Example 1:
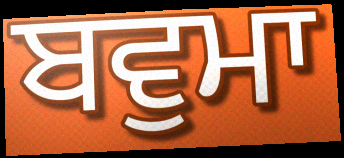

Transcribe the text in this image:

ਬਵੁਮਾ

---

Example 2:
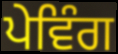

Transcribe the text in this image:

ਪੇਵਿੰਗ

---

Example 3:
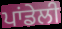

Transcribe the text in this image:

ਪਾਂਡੇਲੀ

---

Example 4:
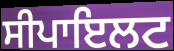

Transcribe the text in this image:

ਸੀਪਾਇਲਟ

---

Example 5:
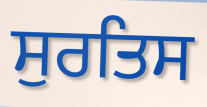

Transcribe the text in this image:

ਸੁਰਤਿਸ